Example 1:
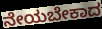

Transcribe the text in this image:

ನೇಯಬೇಕಾದ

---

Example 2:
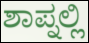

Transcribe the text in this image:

ಶಾಪ್ನಲ್ಲಿ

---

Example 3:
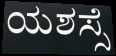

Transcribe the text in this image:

ಯಶಸ್ಸೆ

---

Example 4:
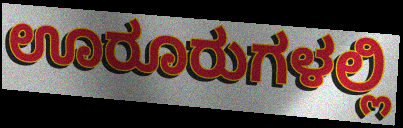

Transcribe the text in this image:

ಊರೂರುಗಳಲ್ಲಿ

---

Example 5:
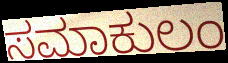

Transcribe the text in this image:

ಸಮಾಕುಲಂ